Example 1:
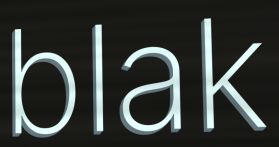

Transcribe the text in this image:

blak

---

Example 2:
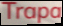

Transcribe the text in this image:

Trapa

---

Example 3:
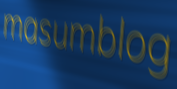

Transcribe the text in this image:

masumblog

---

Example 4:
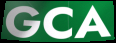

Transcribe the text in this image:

GCA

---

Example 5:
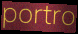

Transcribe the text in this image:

portro